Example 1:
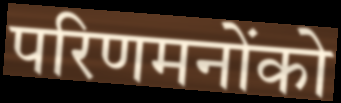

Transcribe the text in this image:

परिणमनोंको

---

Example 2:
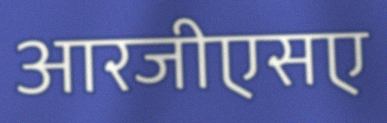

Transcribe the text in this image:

आरजीएसए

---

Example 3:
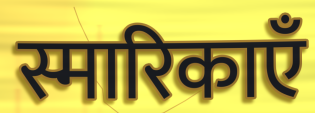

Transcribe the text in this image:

स्मारिकाएँ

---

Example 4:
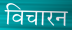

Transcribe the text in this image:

विचारन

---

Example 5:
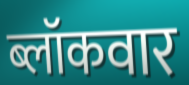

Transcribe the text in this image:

ब्लॉकवार